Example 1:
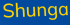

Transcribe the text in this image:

Shunga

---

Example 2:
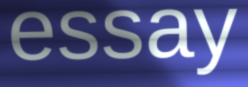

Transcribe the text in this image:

essay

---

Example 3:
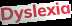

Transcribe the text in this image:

Dyslexia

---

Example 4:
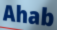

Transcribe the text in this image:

Ahab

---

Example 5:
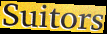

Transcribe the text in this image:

Suitors